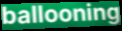
ballooning